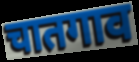
चातगाव